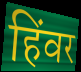
हिंवर